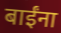
बाईंना